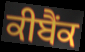
ਕੀਬੈਂਕ